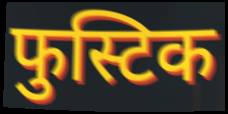
फुस्टिक